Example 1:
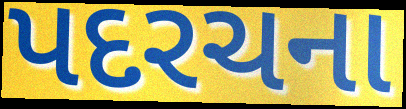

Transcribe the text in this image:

પદરચના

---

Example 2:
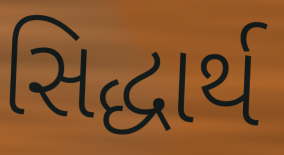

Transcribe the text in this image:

સિદ્ધાર્થ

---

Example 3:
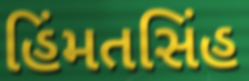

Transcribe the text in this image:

હિંમતસિંહ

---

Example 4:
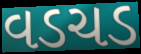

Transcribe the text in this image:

વડચડ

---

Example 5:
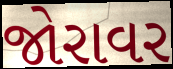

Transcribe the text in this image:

જોરાવર